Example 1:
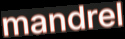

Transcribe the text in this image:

mandrel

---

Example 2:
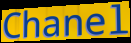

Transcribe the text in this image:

Chanel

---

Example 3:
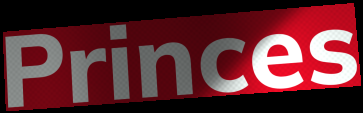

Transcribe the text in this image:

Princes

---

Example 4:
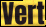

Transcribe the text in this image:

Vert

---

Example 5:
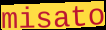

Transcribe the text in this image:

misato